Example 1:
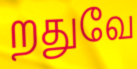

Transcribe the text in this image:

றதுவே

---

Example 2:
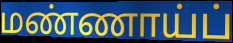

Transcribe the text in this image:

மண்ணாய்ப்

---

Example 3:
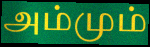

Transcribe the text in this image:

அம்மும்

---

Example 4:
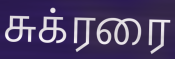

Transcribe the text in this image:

சுக்ரரை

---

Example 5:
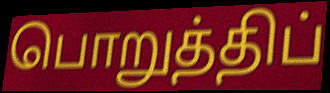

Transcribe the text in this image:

பொறுத்திப்